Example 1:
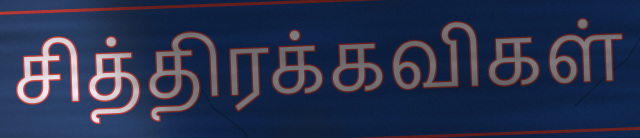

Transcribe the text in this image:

சித்திரக்கவிகள்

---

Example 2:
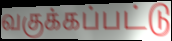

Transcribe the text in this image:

வகுக்கப்பட்டு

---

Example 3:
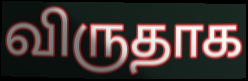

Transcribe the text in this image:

விருதாக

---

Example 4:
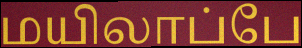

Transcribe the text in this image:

மயிலாப்பே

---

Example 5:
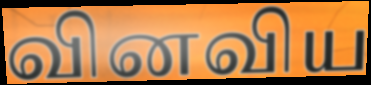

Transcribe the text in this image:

வினவிய